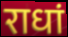
राधां